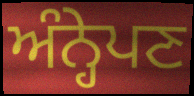
ਅੰਨ੍ਹੇਪਣ